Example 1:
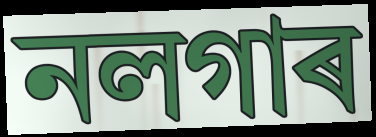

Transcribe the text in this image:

নলগাৰ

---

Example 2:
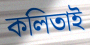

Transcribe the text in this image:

কলিতাই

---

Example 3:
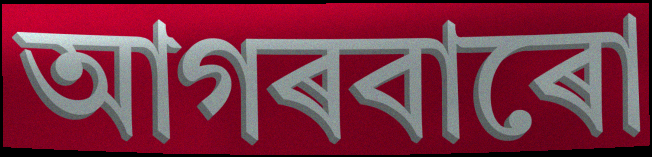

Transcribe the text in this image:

আগৰবাৰো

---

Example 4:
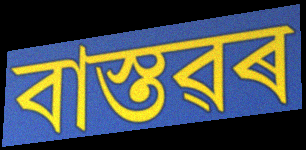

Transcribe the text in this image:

বাস্তৱৰ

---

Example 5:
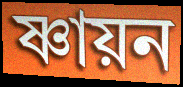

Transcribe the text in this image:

ষ্ণায়ন